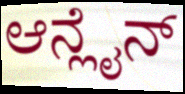
ಆನ್ಲೈನ್